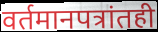
वर्तमानपत्रांतही